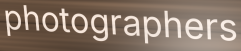
photographers